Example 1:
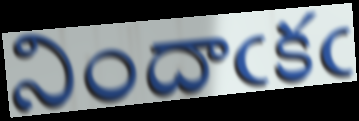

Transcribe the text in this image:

నిందాఁకఁ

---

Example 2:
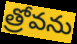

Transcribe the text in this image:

త్రోవను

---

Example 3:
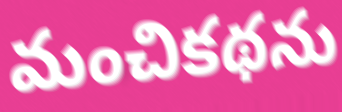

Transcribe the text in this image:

మంచికథను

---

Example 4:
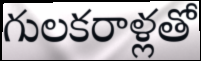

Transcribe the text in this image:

గులకరాళ్లతో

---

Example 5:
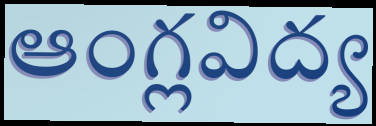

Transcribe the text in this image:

ఆంగ్లవిద్య